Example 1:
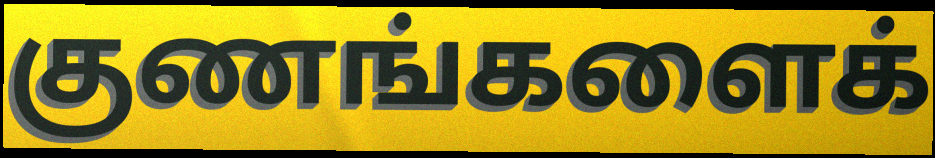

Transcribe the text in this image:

குணங்களைக்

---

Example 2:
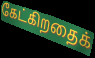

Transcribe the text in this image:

கேட்கிறதைக்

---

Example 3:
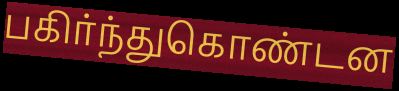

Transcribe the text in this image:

பகிர்ந்துகொண்டன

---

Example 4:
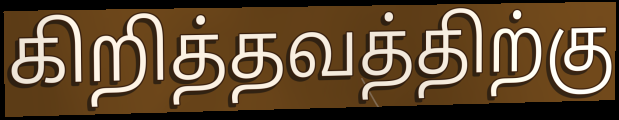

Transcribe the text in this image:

கிறித்தவத்திற்கு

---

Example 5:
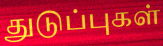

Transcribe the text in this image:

துடுப்புகள்